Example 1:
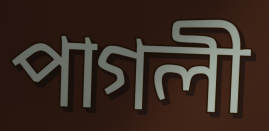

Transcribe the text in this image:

পাগলী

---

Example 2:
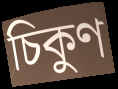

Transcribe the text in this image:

চিকুণ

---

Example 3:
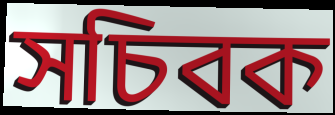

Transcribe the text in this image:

সচিবক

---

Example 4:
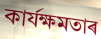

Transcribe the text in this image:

কাৰ্যক্ষমতাৰ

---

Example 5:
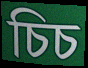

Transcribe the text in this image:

চিচ